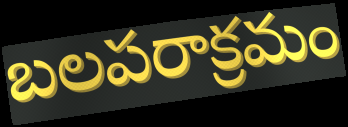
బలపరాక్రమం